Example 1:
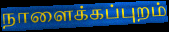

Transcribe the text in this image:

நாளைக்கப்புறம்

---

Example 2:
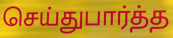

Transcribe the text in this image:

செய்துபார்த்த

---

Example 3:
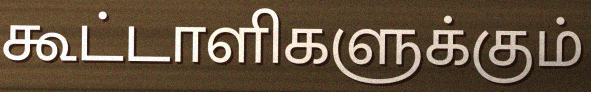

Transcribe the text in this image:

கூட்டாளிகளுக்கும்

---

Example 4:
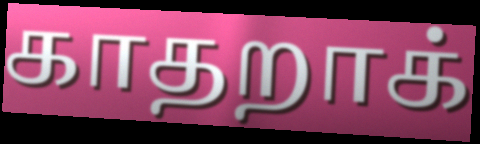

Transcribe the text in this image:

காதறாக்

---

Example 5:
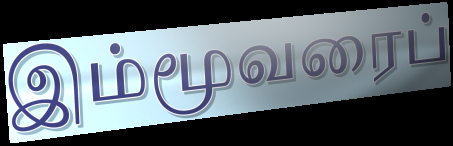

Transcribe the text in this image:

இம்மூவரைப்